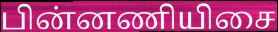
பின்னணியிசை